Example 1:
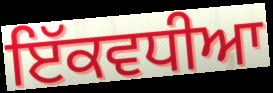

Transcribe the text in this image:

ਇੱਕਵਧੀਆ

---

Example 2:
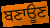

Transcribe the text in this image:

ਬਣਾਊਣ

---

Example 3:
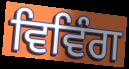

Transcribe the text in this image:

ਵਿਵਿੰਗ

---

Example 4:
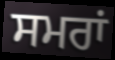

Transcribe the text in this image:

ਸਮਰਾਂ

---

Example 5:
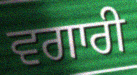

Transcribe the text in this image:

ਵਗਾਰੀ